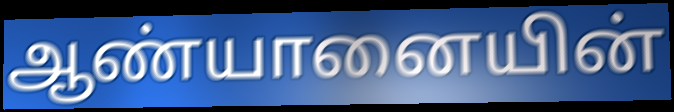
ஆண்யானையின்